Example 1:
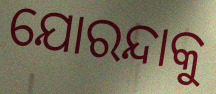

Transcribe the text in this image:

ଯୋରନ୍ଦାକୁ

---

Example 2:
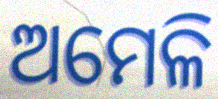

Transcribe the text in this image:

ଅମେଳି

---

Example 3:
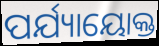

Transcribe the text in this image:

ପର୍ଯ୍ୟାୟୋକ୍ତ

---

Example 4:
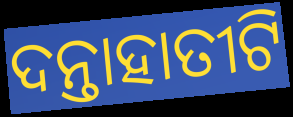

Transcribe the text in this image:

ଦନ୍ତାହାତୀଟି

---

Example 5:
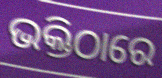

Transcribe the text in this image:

ଭକ୍ତିଠାରେ